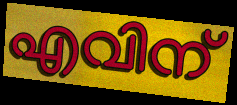
എവിന്